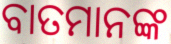
ବାତମାନଙ୍କ